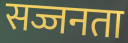
सज्जनता